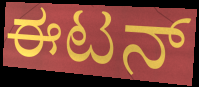
ಈಟನ್